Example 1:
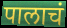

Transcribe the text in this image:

पालाचं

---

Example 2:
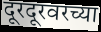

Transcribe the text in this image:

दूरदूरवरच्या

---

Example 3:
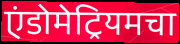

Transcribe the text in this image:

एंडोमेट्रियमचा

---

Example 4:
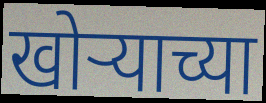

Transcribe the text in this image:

खोऱ्याच्या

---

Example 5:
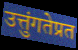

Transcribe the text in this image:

उत्तुंगतेप्रत